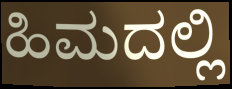
ಹಿಮದಲ್ಲಿ